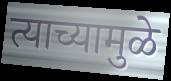
त्याच्यामुळे